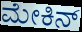
ಮೇಕಿನ್